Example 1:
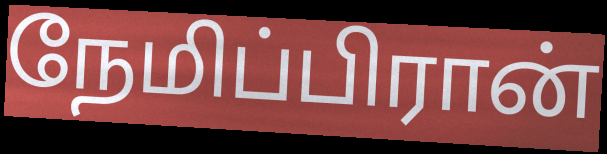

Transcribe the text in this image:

நேமிப்பிரான்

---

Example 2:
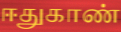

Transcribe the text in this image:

ஈதுகாண்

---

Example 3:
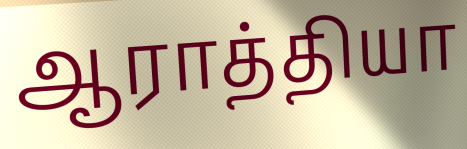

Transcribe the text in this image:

ஆராத்தியா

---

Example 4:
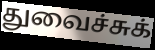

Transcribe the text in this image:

துவைச்சுக்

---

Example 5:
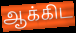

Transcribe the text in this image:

ஆக்கிட